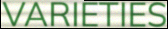
VARIETIES